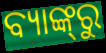
ବ୍ୟାଙ୍କ୍‌ରୁ